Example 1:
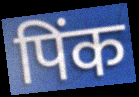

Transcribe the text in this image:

पिंक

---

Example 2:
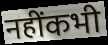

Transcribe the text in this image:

नहींकभी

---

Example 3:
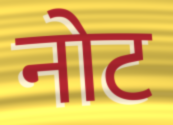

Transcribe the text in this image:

नोट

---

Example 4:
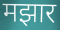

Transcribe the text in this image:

मझार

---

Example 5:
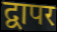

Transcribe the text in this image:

द्वापर